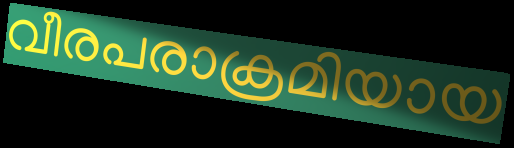
വീരപരാക്രമിയായ